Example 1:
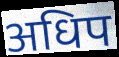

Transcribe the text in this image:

अधिप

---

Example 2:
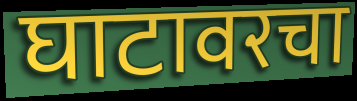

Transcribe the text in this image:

घाटावरचा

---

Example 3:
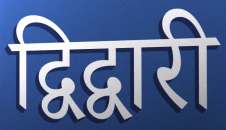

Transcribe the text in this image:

द्विद्वारी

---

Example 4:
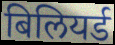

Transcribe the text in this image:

बिलियर्ड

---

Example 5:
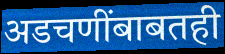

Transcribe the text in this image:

अडचणींबाबतही